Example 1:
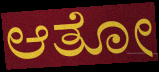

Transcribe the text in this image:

ಆತೋ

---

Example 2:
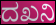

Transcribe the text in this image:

ದಖನಿ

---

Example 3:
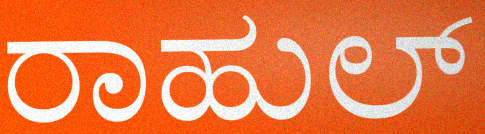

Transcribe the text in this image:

ರಾಹುಲ್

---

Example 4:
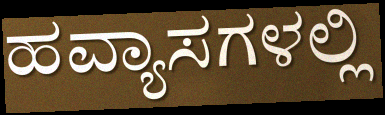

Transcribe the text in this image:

ಹವ್ಯಾಸಗಳಲ್ಲಿ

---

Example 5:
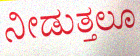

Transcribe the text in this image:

ನೀಡುತ್ತಲೂ